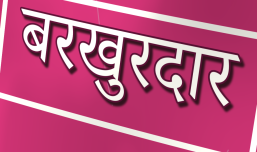
बरखुरदार